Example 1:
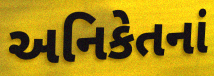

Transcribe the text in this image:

અનિકેતનાં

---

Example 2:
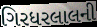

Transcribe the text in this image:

ગિરધરલાલની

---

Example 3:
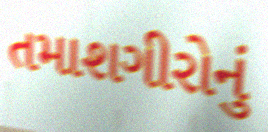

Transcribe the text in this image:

તમાશગીરોનું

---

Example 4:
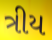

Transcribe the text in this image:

ત્રીય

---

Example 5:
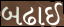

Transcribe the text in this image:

બઢાઈ